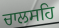
ਚਾਲਸਹਿ